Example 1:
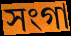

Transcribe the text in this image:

সংগা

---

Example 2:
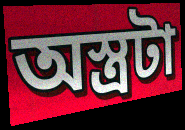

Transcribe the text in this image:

অস্ত্রটা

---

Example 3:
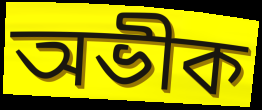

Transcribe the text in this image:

অভীক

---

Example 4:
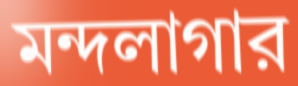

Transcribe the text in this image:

মন্দলাগার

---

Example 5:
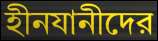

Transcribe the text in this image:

হীনযানীদের